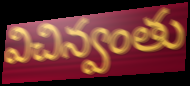
విచిన్వంతు